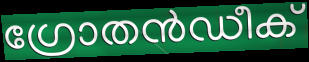
ഗ്രോതൻഡീക്